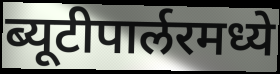
ब्यूटीपार्लरमध्ये